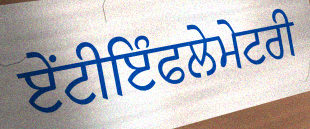
ਏੰਟੀਇੰਫਲੇਮੇਟਰੀ